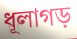
ধূলাগড়